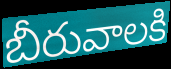
బీరువాలకి